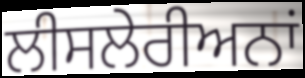
ਲੀਸਲੇਰੀਅਨਾਂ